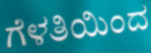
ಗೆಳತಿಯಿಂದ